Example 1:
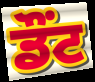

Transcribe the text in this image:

ਡੌਂਟ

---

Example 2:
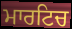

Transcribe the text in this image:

ਮਾਰਟਿਚ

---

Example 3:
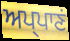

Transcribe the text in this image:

ਅਪ੍ਪਾਣਂ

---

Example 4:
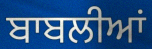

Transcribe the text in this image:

ਬਾਬਲੀਆਂ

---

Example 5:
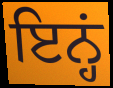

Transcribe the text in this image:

ਇਨ੍ਹਂ